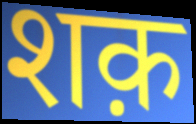
शक़